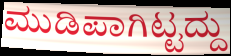
ಮುಡಿಪಾಗಿಟ್ಟದ್ದು